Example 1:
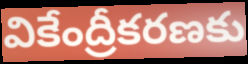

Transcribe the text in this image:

వికేంద్రీకరణకు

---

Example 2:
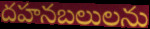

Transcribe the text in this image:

దహనబలులను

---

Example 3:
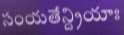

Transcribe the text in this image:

సంయతేన్ద్రియాః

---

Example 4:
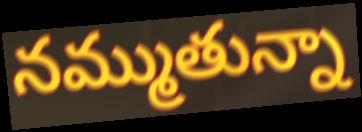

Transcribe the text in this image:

నమ్ముతున్నా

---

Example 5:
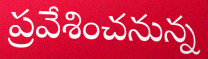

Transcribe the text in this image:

ప్రవేశించనున్న